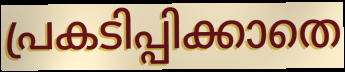
പ്രകടിപ്പിക്കാതെ